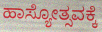
ಹಾಸ್ಯೋತ್ಸವಕ್ಕೆ